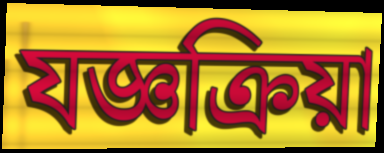
যজ্ঞক্রিয়া